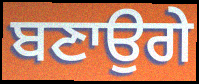
ਬਣਾਉਗੇ